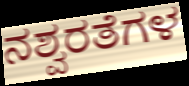
ನಶ್ವರತೆಗಳ